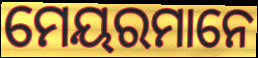
ମେୟରମାନେ